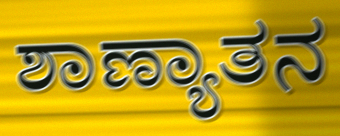
ಶಾಣ್ಯಾತನ